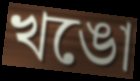
খঙো